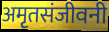
अमृतसंजीवनी